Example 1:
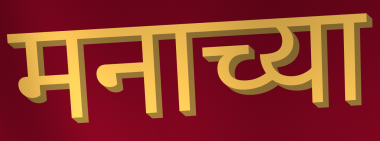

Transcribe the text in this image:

मनाच्या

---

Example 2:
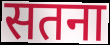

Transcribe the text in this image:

सतना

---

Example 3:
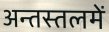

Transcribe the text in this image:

अन्तस्तलमें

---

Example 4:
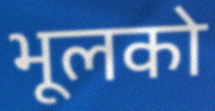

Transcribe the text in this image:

भूलको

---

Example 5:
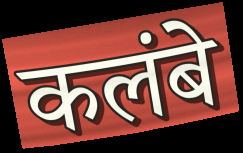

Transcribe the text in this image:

कलंबे